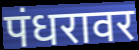
पंधरावर